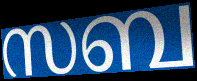
സബ